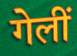
गेलीं